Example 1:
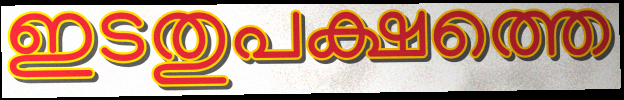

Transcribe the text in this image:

ഇടതുപക്ഷത്തെ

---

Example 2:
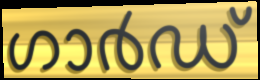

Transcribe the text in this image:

ഗാർഡ്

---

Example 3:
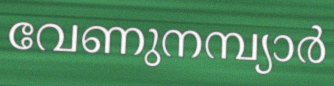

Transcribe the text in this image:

വേണുനമ്പ്യാർ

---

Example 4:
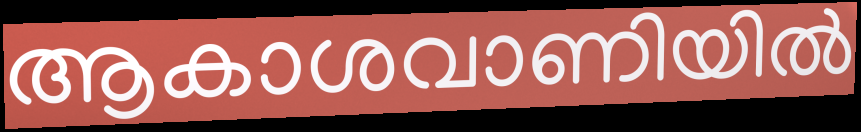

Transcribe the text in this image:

ആകാശവാണിയിൽ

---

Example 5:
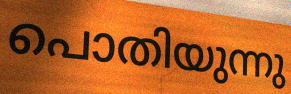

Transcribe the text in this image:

പൊതിയുന്നു